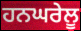
ਹਨਘਰੇਲੂ